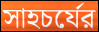
সাহচর্যের